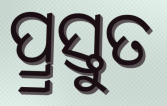
ପ୍ର୍ରସ୍ତୁତ